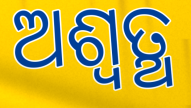
ଅଶ୍ଵତ୍ଥ